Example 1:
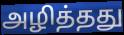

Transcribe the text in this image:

அழித்தது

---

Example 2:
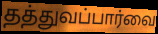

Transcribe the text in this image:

தத்துவப்பார்வை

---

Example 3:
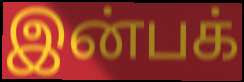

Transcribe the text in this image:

இன்பக்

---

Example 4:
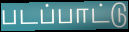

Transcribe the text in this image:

படப்பாட்டு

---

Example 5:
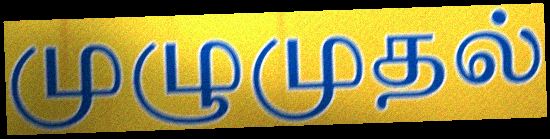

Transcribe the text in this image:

முழுமுதல்